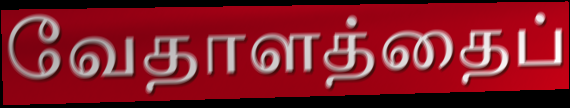
வேதாளத்தைப்